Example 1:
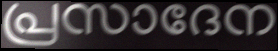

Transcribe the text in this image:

പ്രസാദേന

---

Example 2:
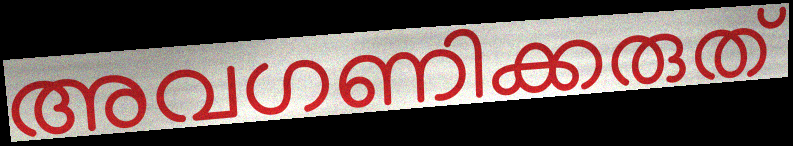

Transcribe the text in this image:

അവഗണിക്കരുത്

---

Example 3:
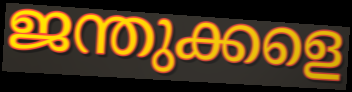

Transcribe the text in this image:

ജന്തുക്കളെ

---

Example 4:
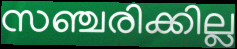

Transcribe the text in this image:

സഞ്ചരിക്കില്ല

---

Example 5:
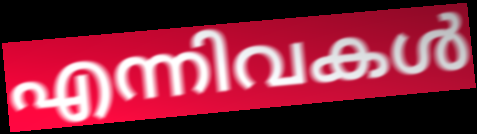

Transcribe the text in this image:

എന്നിവകൾ